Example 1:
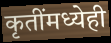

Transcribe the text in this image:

कृतींमध्येही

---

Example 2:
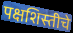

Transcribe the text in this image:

पक्षशिस्तीचे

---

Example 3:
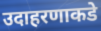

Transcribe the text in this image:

उदाहरणाकडे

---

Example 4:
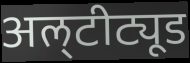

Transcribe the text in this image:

अल्टीट्यूड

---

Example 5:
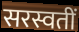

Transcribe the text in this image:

सरस्वतीं